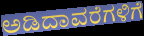
ಅಡಿದಾವರೆಗಳಿಗೆ